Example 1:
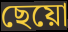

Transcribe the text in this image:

ছেয়ো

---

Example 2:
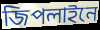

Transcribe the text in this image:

জিপলাইনে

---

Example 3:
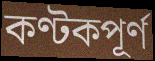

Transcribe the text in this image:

কণ্টকপূর্ণ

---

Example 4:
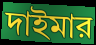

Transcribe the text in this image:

দাইমার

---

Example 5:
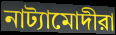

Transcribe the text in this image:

নাট্যামোদীরা